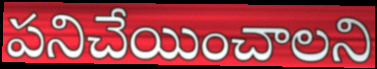
పనిచేయించాలని